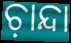
ଚ଼ାନ୍ଦା